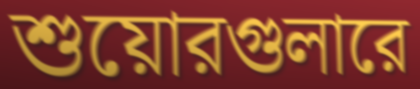
শুয়োরগুলারে